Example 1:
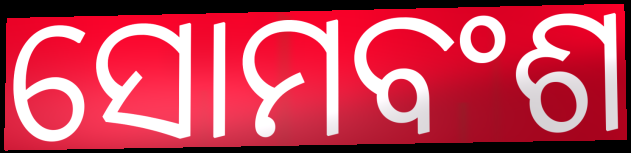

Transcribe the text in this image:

ସୋମବଂଶ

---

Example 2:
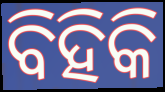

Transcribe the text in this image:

ବିହିକି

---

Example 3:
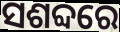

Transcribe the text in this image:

ସଶବ୍ଦରେ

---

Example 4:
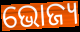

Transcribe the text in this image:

ଭୋଜ୍ୟ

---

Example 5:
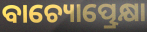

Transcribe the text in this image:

ବାଚ୍ୟୋତ୍ପ୍ରେକ୍ଷା